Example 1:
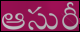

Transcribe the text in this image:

ఆసురీ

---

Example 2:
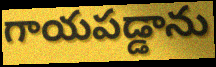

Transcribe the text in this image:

గాయపడ్డాను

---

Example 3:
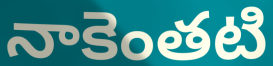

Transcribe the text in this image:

నాకెంతటి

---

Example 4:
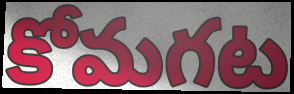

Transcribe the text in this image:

కోమగట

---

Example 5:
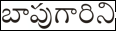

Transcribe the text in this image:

బాపుగారిని